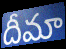
దీమా